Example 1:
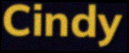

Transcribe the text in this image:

Cindy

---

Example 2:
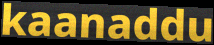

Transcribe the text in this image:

kaanaddu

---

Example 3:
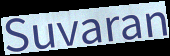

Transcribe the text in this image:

Suvaran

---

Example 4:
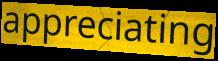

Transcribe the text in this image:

appreciating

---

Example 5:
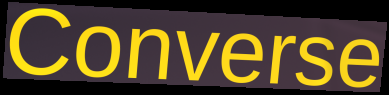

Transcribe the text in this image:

Converse